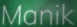
Manik